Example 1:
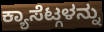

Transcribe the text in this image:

ಕ್ಯಾಸೆಟ್ಗಳನ್ನು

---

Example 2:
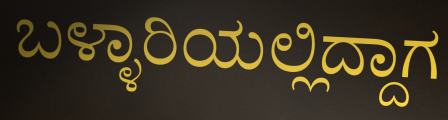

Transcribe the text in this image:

ಬಳ್ಳಾರಿಯಲ್ಲಿದ್ದಾಗ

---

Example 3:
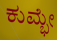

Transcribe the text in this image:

ಕುಮ್ಭೇ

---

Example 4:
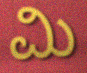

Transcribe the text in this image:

ಮಿ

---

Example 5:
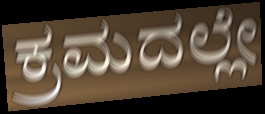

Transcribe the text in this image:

ಕ್ರಮದಲ್ಲೇ